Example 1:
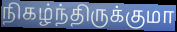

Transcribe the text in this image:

நிகழ்ந்திருக்குமா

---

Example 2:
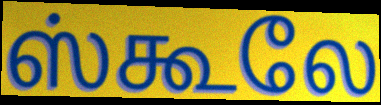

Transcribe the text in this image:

ஸ்கூலே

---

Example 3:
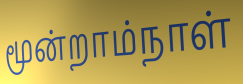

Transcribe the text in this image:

மூன்றாம்நாள்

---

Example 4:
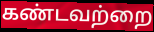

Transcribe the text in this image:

கண்டவற்றை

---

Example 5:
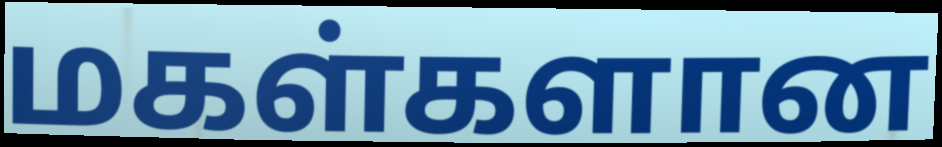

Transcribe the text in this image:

மகள்களான